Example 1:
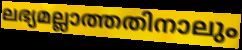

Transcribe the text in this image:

ലഭ്യമല്ലാത്തതിനാലും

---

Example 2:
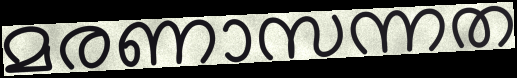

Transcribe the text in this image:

മരണാസന്നത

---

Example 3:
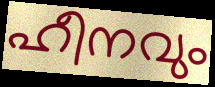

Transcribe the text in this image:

ഹീനവും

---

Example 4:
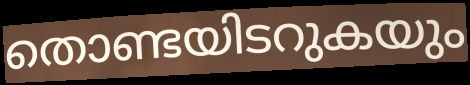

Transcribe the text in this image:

തൊണ്ടയിടറുകയും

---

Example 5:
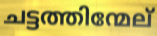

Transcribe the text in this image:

ചട്ടത്തിന്മേല്